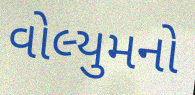
વોલ્યુમનો